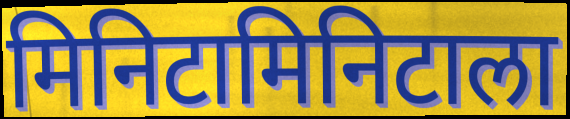
मिनिटामिनिटाला